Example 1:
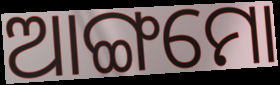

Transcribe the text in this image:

ଆଙ୍ଗମୋ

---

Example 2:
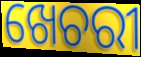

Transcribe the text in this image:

ଖେଚରୀ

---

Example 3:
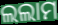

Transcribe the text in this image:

ଲଲାମ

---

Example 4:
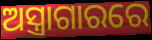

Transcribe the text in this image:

ଅସ୍ତ୍ରାଗାରରେ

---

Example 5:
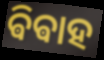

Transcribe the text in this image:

ଵିଵାହ